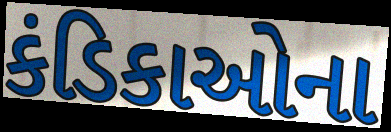
કંડિકાઓના